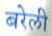
बरेली